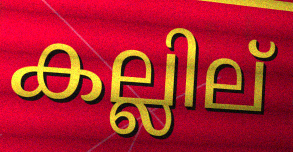
കല്ലില്